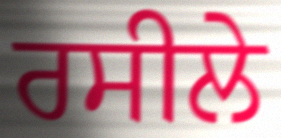
ਰਸੀਲੇ